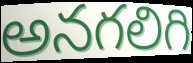
అనగలిగి